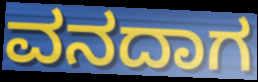
ವನದಾಗ